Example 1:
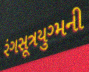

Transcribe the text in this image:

રંગસૂત્રયુગ્મની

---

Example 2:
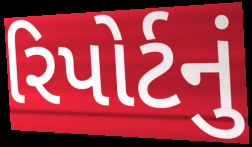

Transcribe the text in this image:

રિપોર્ટનું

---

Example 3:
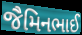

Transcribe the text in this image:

જૈમિનભાઈ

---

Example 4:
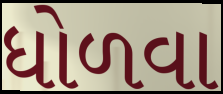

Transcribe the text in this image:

ધોળવા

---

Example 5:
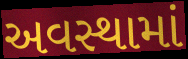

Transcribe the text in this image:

અવસ્થામાં